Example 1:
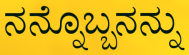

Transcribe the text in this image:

ನನ್ನೊಬ್ಬನನ್ನು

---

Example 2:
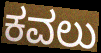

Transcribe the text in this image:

ಕವಲು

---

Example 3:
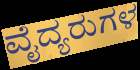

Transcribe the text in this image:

ವೈದ್ಯರುಗಳ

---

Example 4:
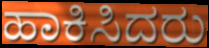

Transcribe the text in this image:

ಹಾಕಿಸಿದರು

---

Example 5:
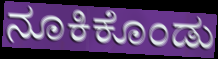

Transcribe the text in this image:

ನೂಕಿಕೊಂಡು